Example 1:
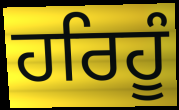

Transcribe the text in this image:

ਹਰਿਹੂੰ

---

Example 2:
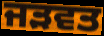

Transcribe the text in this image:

ਜੜਵਤ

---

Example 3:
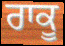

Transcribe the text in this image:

ਰਾਕੂ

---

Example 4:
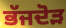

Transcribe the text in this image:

ਭੱਜਦੋੜ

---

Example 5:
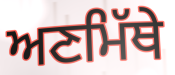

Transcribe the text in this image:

ਅਣਮਿੱਥੇ